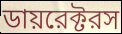
ডায়রেক্টরস